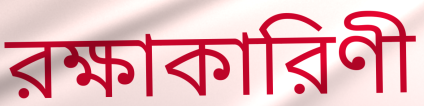
রক্ষাকারিণী